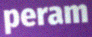
peram